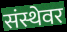
संस्थेवर